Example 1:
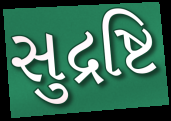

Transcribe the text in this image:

સુદ્રષ્ટિ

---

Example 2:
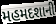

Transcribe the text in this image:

મહમદશાની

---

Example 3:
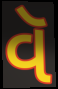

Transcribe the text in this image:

વૅ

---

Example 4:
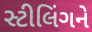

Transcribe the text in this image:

સ્ટીલિંગને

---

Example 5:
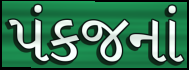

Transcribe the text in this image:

પંકજનાં